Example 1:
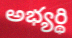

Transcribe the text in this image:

అభ్యర్థి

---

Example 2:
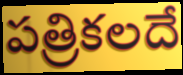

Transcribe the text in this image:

పత్రికలదే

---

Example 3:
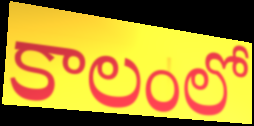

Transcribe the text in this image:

కాలంలో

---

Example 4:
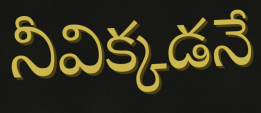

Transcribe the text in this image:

నీవిక్కడనే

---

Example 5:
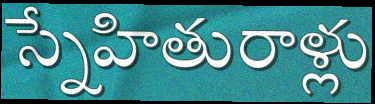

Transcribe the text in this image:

స్నేహితురాళ్లు